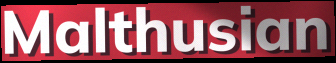
Malthusian